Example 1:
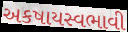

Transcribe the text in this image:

અકષાયસ્વભાવી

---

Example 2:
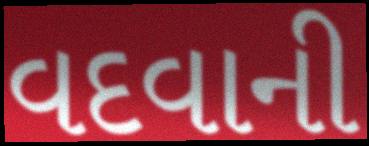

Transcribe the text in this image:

વદવાની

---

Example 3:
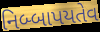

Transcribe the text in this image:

નિબ્બાપયતેવ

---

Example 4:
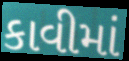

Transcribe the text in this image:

કાવીમાં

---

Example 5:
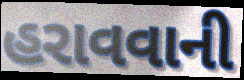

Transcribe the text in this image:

હરાવવાની